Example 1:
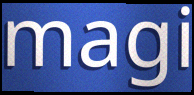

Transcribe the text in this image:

magi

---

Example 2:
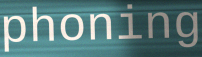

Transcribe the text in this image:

phoning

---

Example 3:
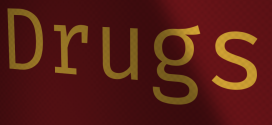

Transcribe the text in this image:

Drugs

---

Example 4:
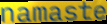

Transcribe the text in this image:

namaste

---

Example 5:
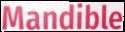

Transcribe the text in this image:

Mandible